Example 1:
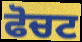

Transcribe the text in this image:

ਫੋਚਟ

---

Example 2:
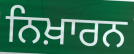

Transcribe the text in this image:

ਨਿਖ਼ਾਰਨ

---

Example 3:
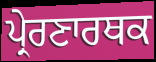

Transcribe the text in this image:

ਪ੍ਰੇਰਣਾਰਥਕ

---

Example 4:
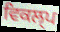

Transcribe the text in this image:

ਵਿਕਲ੍ਪ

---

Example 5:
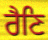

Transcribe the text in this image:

ਰੈਣਿ